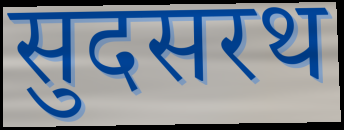
सुदसरथ